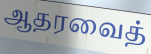
ஆதரவைத்